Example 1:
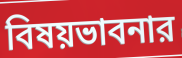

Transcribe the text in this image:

বিষয়ভাবনার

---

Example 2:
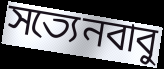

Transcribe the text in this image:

সত্যেনবাবু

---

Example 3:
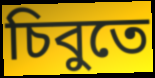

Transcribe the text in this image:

চিবুতে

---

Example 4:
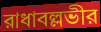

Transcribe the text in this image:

রাধাবল্লভীর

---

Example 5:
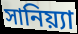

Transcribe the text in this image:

সানিয়্যা